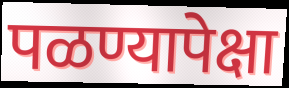
पळण्यापेक्षा